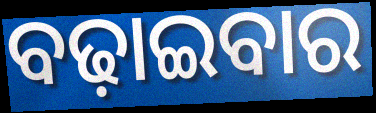
ବଢ଼ାଇବାର